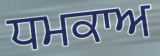
ਧਮਕਾਅ